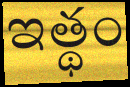
ఇత్థం